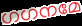
ഗഗനമേ